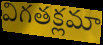
విగతక్లమా